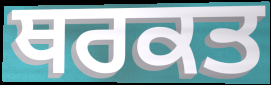
ਥਰਕਤ